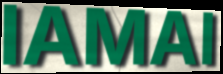
IAMAI